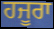
ਹਜੂਰਾ